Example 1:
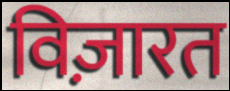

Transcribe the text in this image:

विज़ारत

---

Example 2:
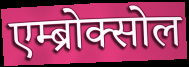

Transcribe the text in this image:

एम्ब्रोक्सोल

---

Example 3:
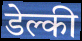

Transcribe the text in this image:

डेल्की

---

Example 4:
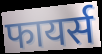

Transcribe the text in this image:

फायर्स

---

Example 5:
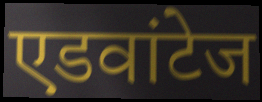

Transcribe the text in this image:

एडवांटेज